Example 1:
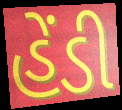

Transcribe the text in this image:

હેંડી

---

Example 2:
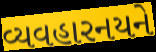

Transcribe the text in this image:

વ્યવહારનયને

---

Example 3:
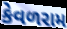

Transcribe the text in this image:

કેવળરામ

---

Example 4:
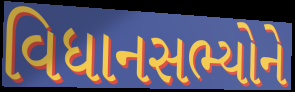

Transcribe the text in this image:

વિધાનસભ્યોને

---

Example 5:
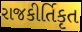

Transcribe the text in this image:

રાજકીર્તિકૃત